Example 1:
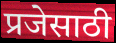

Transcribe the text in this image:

प्रजेसाठी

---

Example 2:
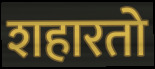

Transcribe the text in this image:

शहारतो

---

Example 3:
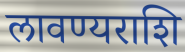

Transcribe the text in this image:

लावण्यराशि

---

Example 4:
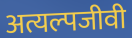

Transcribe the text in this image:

अत्यल्पजीवी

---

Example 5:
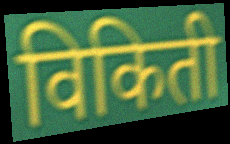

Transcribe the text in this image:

विकिती